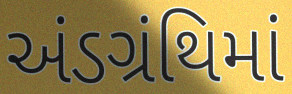
અંડગ્રંથિમાં